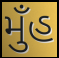
મુઁહ